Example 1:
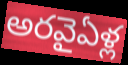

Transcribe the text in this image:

అరవైఏళ్ల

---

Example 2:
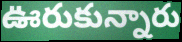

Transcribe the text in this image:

ఊరుకున్నారు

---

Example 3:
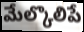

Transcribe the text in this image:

మేల్కొలిపే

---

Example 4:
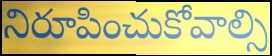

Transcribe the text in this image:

నిరూపించుకోవాల్సి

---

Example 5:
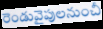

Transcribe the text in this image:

రెండువైపులనుంచీ